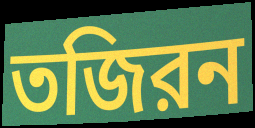
তজিরন